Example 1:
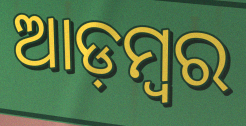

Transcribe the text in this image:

ଆଡ଼ମ୍ୱର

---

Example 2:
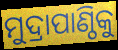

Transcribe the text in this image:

ମୁଦ୍ରାପାଣ୍ଠିକୁ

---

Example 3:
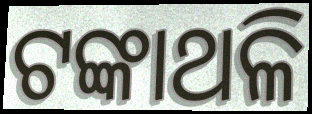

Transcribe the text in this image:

ଟଙ୍କାଥଳି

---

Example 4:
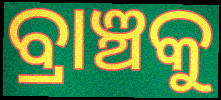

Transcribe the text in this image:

ବ୍ରାଞ୍ଚକୁ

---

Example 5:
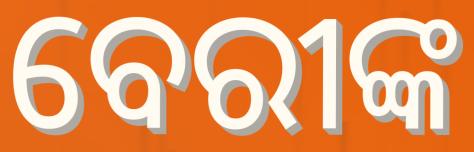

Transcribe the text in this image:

ବେରୀଙ୍କ